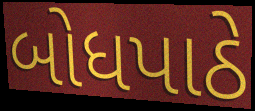
બોધપાઠે